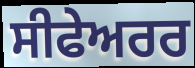
ਸੀਫੇਅਰਰ